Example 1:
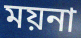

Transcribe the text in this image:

ময়না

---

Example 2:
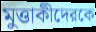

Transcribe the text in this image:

মুত্তাকীদেরকে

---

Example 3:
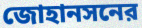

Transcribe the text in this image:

জোহানসনের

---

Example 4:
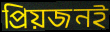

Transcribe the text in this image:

প্রিয়জনই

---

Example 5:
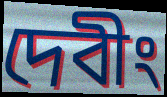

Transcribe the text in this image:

দেবীং